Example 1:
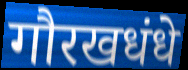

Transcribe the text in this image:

गौरखधंधे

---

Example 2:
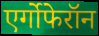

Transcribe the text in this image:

एर्गोफेरॉन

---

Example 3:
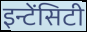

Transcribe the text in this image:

इन्टेंसिटी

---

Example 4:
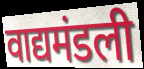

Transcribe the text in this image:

वाद्यमंडली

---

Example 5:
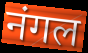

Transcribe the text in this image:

नंगल